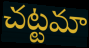
చట్టమా